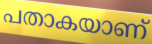
പതാകയാണ്